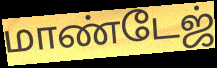
மாண்டேஜ்